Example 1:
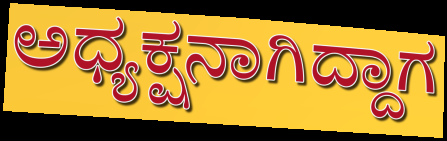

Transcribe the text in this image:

ಅಧ್ಯಕ್ಷನಾಗಿದ್ದಾಗ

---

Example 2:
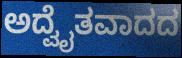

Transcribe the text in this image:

ಅದ್ವೈತವಾದದ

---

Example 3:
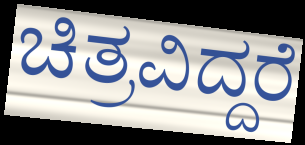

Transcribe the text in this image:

ಚಿತ್ರವಿದ್ದರೆ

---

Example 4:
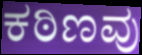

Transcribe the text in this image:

ಕಠಿಣವು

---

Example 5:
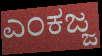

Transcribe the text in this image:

ಎಂಕಜ್ಜ